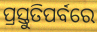
ପ୍ରସ୍ତୁତିପର୍ବରେ